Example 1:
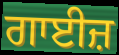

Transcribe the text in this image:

ਗਾਈਜ਼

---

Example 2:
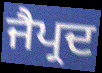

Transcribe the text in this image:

ਜੈਪ੍ਰਦ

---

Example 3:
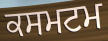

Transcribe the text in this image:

ਕਸਮਟਮ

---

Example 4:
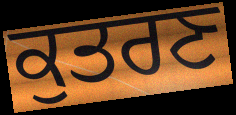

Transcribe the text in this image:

ਕੁਤਰਣ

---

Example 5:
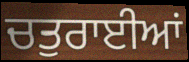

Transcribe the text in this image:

ਚਤੁਰਾਈਆਂ